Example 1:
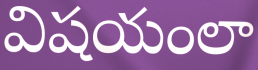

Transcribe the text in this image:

విషయంలా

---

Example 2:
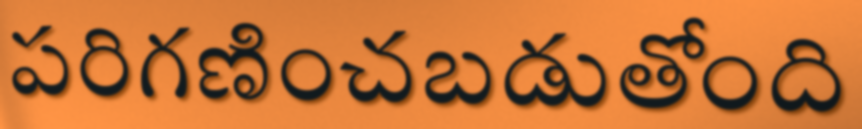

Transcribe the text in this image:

పరిగణించబడుతోంది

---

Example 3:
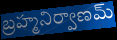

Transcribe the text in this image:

బ్రహ్మనిర్వాణమ్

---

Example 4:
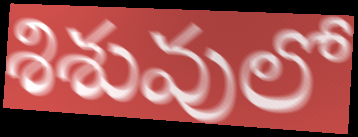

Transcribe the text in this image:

శిశువులో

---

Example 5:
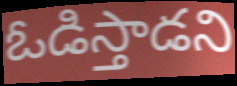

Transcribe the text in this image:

ఓడిస్తాడని